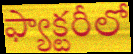
ఫ్యాక్టరీలో